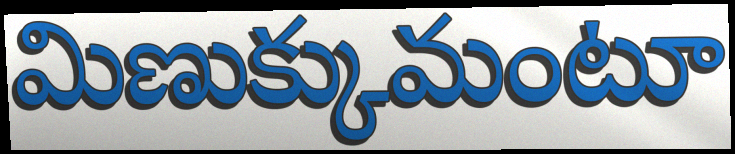
మిణుక్కుమంటూ